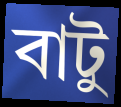
বাটু